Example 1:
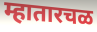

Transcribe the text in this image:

म्हातारचळ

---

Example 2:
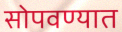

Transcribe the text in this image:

सोपवण्यात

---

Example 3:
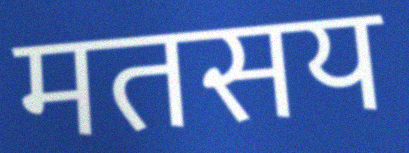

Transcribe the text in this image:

मतसय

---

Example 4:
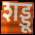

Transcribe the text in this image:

शड्डू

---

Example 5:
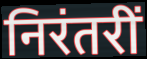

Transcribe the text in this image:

निरंतरीं